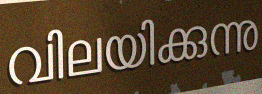
വിലയിക്കുന്നു